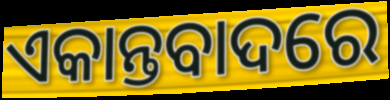
ଏକାନ୍ତବାଦରେ